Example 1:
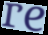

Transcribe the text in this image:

re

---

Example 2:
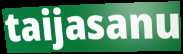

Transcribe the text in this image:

taijasanu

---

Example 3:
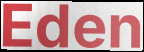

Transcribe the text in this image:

Eden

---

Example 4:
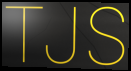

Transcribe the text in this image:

TJS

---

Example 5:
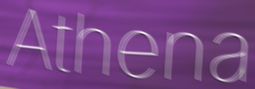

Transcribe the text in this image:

Athena